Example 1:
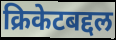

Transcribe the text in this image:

क्रिकेटबद्दल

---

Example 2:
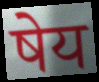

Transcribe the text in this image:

षेय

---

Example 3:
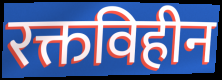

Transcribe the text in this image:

रक्तविहीन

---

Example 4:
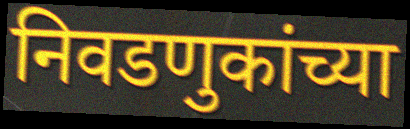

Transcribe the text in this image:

निवडणुकांच्या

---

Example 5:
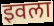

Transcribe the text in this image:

इवला